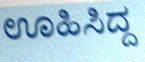
ಊಹಿಸಿದ್ದ